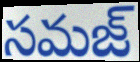
సమజ్